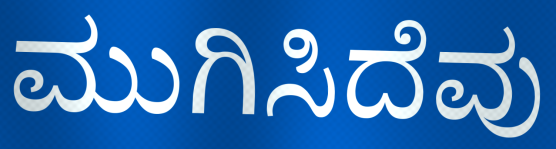
ಮುಗಿಸಿದೆವು